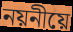
নয়নীয়ে